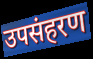
उपसंहरण